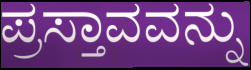
ಪ್ರಸ್ತಾವವನ್ನು